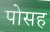
पोसह